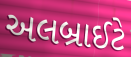
અલબ્રાઈટે